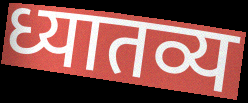
ध्यातव्य